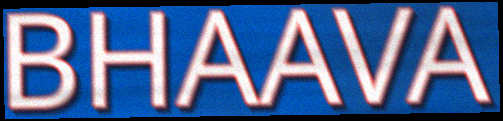
BHAAVA